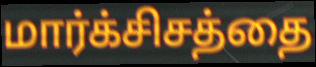
மார்க்சிசத்தை